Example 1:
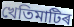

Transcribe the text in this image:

খেতিমাটিৰ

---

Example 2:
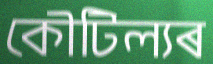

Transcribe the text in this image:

কৌটিল্যৰ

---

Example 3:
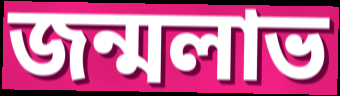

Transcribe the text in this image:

জন্মলাভ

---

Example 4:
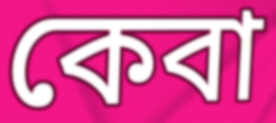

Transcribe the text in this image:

কেবা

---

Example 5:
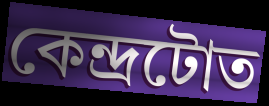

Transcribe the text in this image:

কেন্দ্ৰটোত